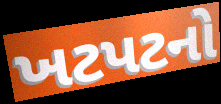
ખટપટનો